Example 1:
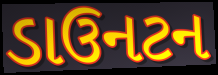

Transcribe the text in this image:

ડાઉનટન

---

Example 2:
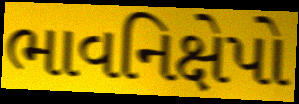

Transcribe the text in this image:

ભાવનિક્ષેપો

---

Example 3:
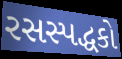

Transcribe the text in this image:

રસસ્પદ્ધકો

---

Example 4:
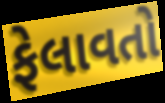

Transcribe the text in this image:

ફેલાવતો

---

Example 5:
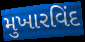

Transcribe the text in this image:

મુખારવિંદ